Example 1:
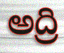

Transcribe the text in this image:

అద్రి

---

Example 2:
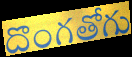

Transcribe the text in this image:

దొంగతోగు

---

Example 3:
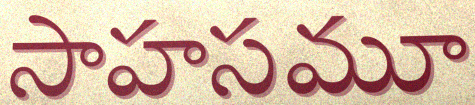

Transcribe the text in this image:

సాహసమూ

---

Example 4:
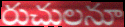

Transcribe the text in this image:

రుచులనూ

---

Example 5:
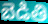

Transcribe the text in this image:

బెడితి